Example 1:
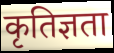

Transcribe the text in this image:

कृतिज्ञता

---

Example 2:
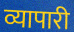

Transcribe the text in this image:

व्‍यापारी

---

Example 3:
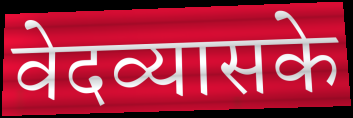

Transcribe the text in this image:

वेदव्यासके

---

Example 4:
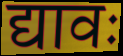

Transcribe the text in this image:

द्यावः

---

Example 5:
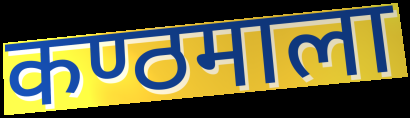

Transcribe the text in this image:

कण्ठमाला